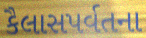
કૈલાસપર્વતના